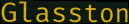
Glasston